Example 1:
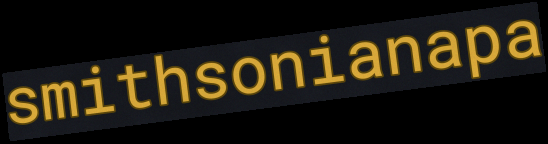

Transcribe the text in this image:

smithsonianapa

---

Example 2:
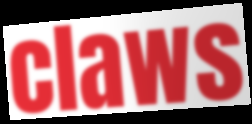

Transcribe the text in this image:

claws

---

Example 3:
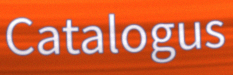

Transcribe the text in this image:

Catalogus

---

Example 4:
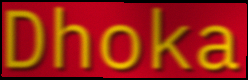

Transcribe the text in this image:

Dhoka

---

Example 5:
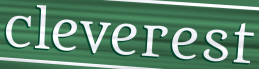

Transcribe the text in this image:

cleverest